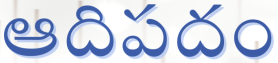
ఆదిపదం